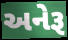
અનેરૂ